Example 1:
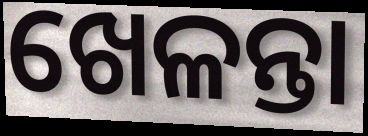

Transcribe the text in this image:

ଖେଳନ୍ତା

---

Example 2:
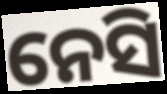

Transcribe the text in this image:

ନେସି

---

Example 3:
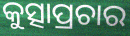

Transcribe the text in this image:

କୁତ୍ସାପ୍ରଚାର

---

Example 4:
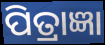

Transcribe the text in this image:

ପିତ୍ରାଜ୍ଞା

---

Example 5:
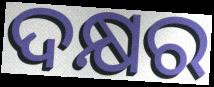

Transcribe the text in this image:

ଦକ୍ଷର